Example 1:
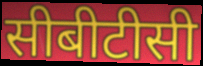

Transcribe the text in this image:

सीबीटीसी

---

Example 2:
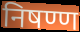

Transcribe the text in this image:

निषण्ण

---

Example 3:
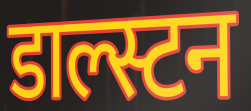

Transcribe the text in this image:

डाल्स्टन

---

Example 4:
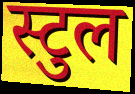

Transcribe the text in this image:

स्टुल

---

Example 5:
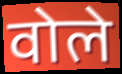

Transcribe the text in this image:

वोले